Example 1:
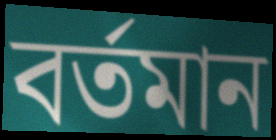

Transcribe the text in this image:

বর্তমান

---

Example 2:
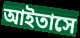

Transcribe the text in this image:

আইতাসে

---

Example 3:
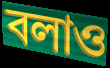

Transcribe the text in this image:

বলাও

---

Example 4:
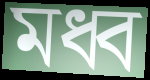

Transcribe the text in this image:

মধ্ব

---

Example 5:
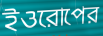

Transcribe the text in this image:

ইওরোপের